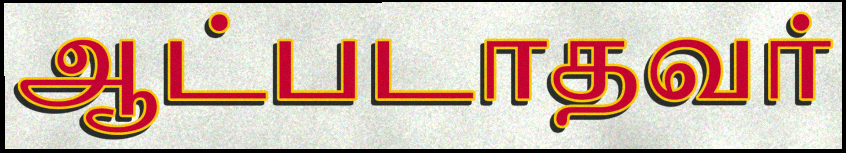
ஆட்படாதவர்